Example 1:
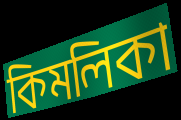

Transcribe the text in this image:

কিমলিকা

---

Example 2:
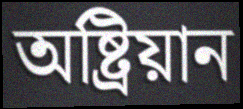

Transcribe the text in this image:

অষ্ট্ৰিয়ান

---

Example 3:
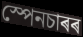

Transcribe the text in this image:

স্পেনচাৰৰ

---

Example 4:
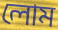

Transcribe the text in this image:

লোম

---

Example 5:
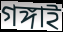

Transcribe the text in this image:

গঙ্গাই